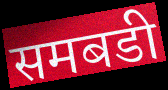
समबडी